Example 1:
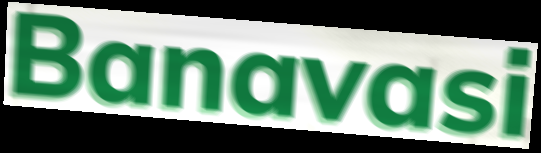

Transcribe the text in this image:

Banavasi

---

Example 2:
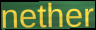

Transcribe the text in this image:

nether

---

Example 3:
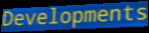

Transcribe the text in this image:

Developments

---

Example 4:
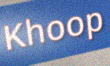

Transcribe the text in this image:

Khoop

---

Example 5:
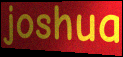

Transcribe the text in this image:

joshua